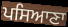
ਪਸਿਆਣਾ